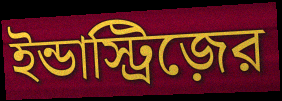
ইন্ডাস্ট্রিজ়ের